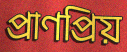
প্রাণপ্রিয়